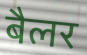
बैलर